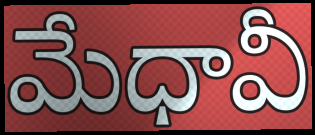
మేధావీ